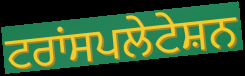
ਟਰਾਂਸਪਲੇਟੇਸ਼ਨ